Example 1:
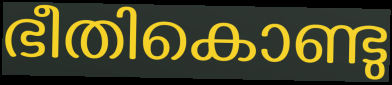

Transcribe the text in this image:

ഭീതികൊണ്ടു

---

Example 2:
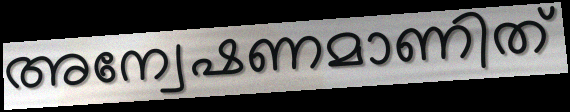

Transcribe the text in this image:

അന്വേഷണമാണിത്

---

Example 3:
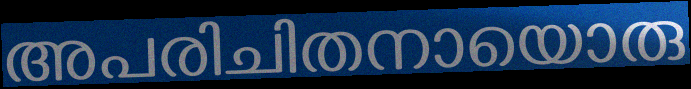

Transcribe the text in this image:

അപരിചിതനായൊരു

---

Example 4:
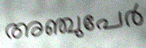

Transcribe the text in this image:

അഞ്ചുപേർ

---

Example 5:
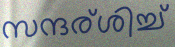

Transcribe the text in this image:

സന്ദര്ശിച്ച്